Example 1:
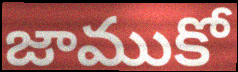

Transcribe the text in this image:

జాముకో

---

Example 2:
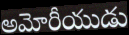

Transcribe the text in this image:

అమోరీయుడు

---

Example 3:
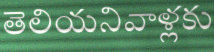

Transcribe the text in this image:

తెలియనివాళ్లకు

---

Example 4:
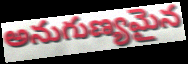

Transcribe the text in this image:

అనుగుణ్యమైన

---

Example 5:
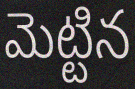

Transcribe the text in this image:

మెట్టిన